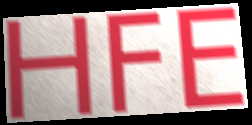
HFE